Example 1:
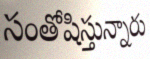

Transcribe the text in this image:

సంతోషిస్తున్నారు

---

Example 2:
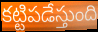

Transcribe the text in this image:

కట్టిపడేస్తుంది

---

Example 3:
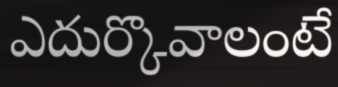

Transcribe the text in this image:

ఎదుర్కొవాలంటే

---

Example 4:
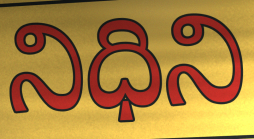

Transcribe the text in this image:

నిధిని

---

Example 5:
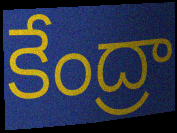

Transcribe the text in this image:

కేంద్రా